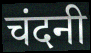
चंदनी